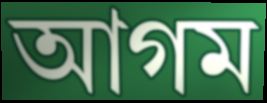
আগম